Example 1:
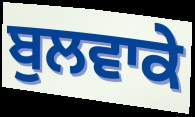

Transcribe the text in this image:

ਬੁਲਵਾਕੇ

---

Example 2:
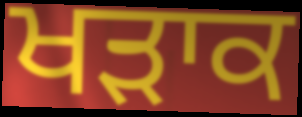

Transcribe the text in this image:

ਖੜਾਕ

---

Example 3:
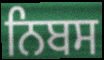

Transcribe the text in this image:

ਨਿਬਸ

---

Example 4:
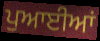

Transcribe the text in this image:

ਪੁਆਈਆਂ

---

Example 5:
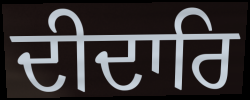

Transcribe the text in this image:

ਦੀਦਾਰਿ